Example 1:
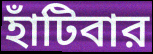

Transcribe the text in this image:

হাঁটিবার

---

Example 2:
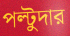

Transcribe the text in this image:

পল্টুদার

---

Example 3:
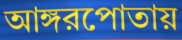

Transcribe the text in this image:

আঙ্গরপোতায়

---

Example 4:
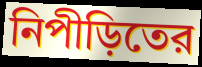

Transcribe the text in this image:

নিপীড়িতের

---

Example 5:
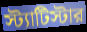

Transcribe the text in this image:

স্ট্যাটিস্টার